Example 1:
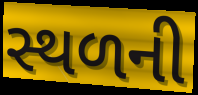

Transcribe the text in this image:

સ્થળની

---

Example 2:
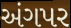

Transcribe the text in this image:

અંગપર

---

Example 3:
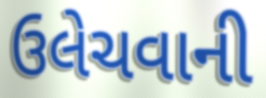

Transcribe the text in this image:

ઉલેચવાની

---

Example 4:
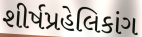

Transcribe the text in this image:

શીર્ષપ્રહેલિકાંગ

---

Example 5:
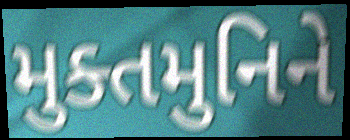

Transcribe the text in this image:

મુક્તમુનિને